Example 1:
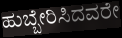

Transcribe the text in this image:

ಹುಬ್ಬೇರಿಸಿದವರೇ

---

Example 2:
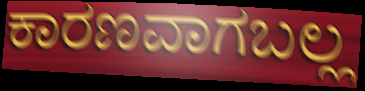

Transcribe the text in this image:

ಕಾರಣವಾಗಬಲ್ಲ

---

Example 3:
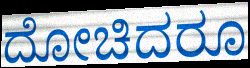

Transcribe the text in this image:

ದೋಚಿದರೂ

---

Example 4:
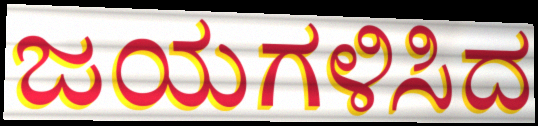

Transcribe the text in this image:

ಜಯಗಳಿಸಿದ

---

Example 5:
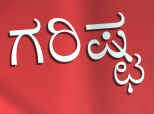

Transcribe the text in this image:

ಗರಿಷ್ಟ